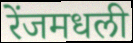
रेंजमधली